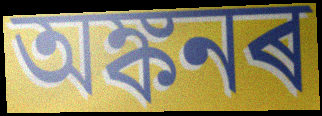
অঙ্কনৰ